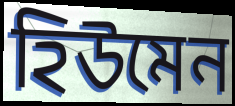
হিউমেন